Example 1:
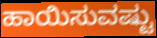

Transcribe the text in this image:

ಹಾಯಿಸುವಷ್ಟು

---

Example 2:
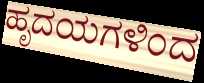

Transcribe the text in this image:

ಹೃದಯಗಳಿಂದ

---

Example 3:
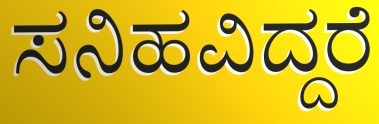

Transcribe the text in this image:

ಸನಿಹವಿದ್ದರೆ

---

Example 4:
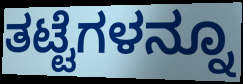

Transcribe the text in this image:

ತಟ್ಟೆಗಳನ್ನೂ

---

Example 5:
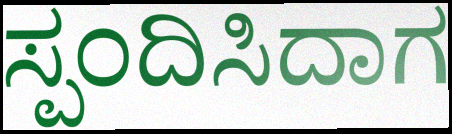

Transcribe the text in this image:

ಸ್ಪಂದಿಸಿದಾಗ